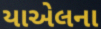
યાએલના